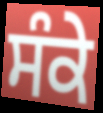
ਸੰਕੇ